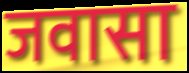
जवासा